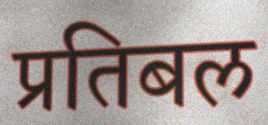
प्रतिबल